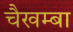
चैखम्बा